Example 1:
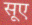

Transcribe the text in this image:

सूए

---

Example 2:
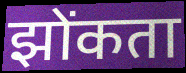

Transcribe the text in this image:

झोंकता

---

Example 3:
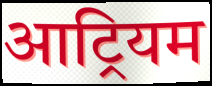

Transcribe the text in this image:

आट्रियम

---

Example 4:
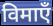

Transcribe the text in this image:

विमाएँ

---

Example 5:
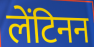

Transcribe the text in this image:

लेंटिनन